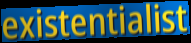
existentialist